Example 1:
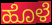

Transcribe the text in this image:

ಹೊಳೆ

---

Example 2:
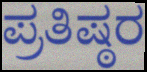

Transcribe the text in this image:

ಪ್ರತಿಷ್ಠರ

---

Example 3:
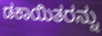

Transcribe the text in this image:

ಡಕಾಯಿತರನ್ನು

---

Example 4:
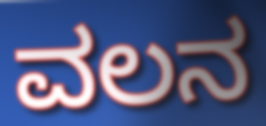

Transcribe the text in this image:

ವಲನ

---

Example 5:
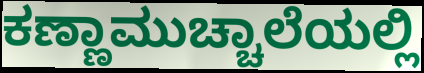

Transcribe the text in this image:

ಕಣ್ಣಾಮುಚ್ಚಾಲೆಯಲ್ಲಿ